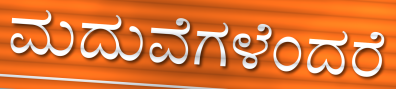
ಮದುವೆಗಳೆಂದರೆ